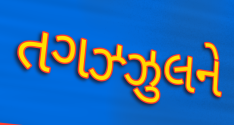
તગઝ્ઝુલને